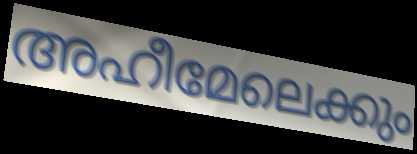
അഹീമേലെക്കും